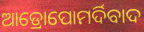
ଆଡ୍ରୋପୋମର୍ଦିବାଦ